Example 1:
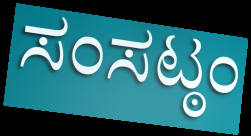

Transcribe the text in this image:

ಸಂಸಟ್ಠಂ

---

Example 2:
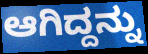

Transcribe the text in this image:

ಆಗಿದ್ದನ್ನು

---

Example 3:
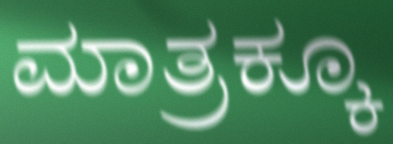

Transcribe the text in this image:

ಮಾತ್ರಕ್ಕೂ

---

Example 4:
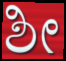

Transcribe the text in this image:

ಶೀ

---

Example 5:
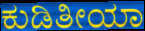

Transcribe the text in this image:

ಕುಡಿತೀಯಾ